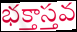
భక్తాస్తవ